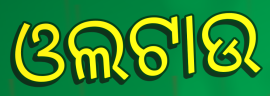
ଓଲଟାଉ